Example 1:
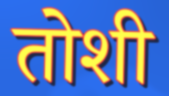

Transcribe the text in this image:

तोशी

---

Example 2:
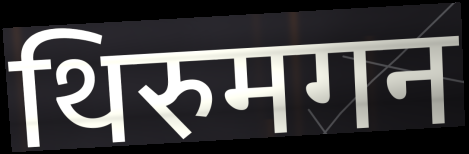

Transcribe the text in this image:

थिरुमगन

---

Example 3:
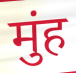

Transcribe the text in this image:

मुंह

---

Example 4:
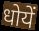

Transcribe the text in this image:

धोयें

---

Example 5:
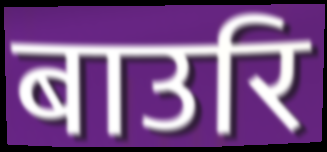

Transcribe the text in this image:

बाउरि